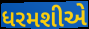
ધરમશીએ